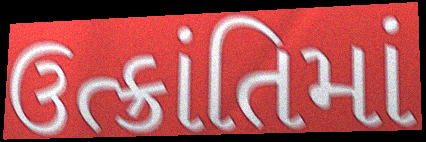
ઉત્ક્રાંતિમાં